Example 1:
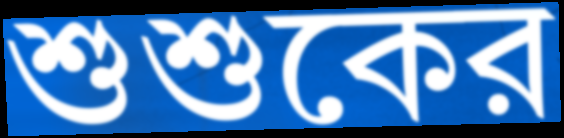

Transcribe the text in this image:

শুশুকের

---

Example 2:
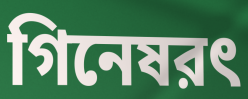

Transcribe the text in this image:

গিনেষরৎ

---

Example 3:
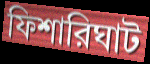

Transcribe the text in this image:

ফিশারিঘাট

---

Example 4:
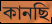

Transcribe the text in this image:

কানছি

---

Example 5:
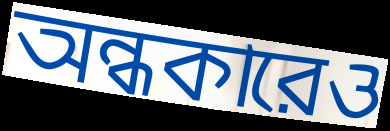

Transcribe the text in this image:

অন্ধকারেও